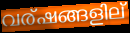
വര്ഷങ്ങളില്